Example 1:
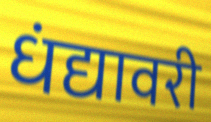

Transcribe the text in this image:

धंद्यावरी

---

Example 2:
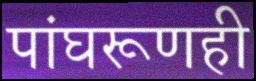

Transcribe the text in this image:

पांघरूणही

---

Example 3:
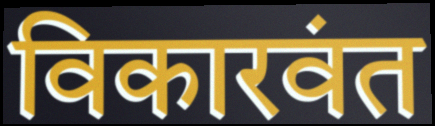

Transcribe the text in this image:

विकारवंत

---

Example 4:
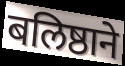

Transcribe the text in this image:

बलिष्ठाने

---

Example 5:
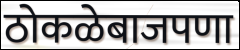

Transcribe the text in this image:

ठोकळेबाजपणा